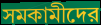
সমকামীদের